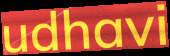
udhavi